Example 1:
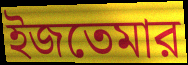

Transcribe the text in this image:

ইজতেমার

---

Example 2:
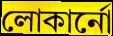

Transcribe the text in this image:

লোকার্নো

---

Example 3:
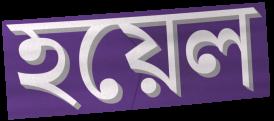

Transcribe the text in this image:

হয়েল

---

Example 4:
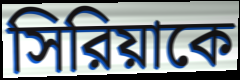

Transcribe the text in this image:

সিরিয়াকে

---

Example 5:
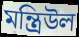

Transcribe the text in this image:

মন্ত্রিউল